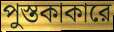
পুস্তকাকারে